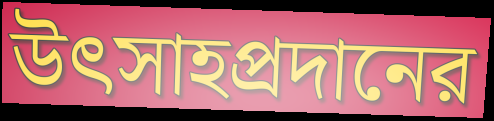
উৎসাহপ্রদানের